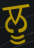
ਲੂ